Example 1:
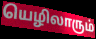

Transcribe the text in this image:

யெழிலாரும்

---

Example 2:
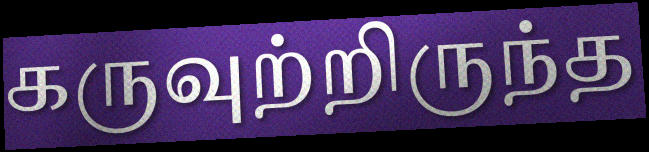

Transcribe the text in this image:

கருவுற்றிருந்த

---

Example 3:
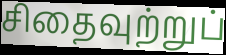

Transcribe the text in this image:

சிதைவுற்றுப்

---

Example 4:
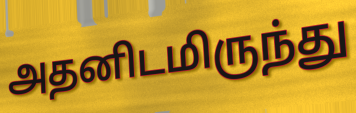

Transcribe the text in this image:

அதனிடமிருந்து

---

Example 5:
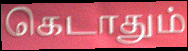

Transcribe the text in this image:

கெடாதும்